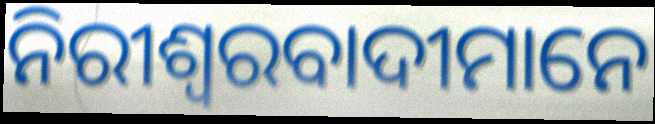
ନିରୀଶ୍ବରବାଦୀମାନେ